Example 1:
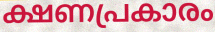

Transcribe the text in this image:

ക്ഷണപ്രകാരം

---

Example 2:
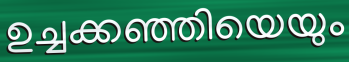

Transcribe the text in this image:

ഉച്ചക്കഞ്ഞിയെയും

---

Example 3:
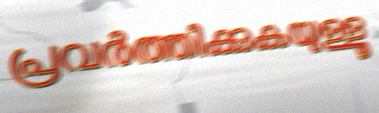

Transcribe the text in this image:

പ്രവർത്തിക്കുകയുള്ളൂ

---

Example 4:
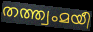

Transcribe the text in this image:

തത്ത്വംമയീ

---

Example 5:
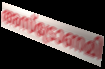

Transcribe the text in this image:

അസ്ട്രോണമി